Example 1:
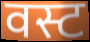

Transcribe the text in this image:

वस्ट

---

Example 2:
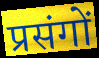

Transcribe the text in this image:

प्रसंगों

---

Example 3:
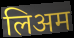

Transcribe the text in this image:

लिअम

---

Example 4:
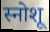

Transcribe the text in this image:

स्नोशू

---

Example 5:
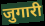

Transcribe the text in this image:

जुगारी